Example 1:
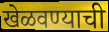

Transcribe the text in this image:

खेळवण्याची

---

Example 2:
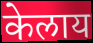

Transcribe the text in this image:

केलाय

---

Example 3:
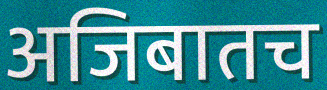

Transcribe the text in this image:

अजिबातच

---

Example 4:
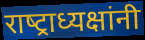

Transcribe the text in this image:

राष्ट्राध्यक्षांनी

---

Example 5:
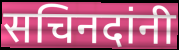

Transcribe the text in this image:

सचिनदांनी